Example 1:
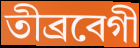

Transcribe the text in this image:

তীব্ৰবেগী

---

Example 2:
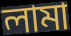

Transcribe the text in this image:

লামা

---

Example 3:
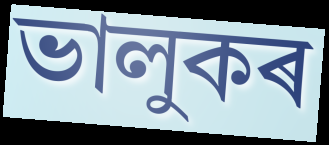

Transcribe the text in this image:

ভালুকৰ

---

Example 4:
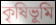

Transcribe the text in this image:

কৃষিভূমি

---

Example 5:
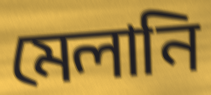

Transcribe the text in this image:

মেলানি